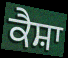
ਕੈਸ਼ਾ